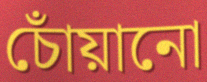
চোঁয়ানো